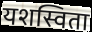
यशस्विता